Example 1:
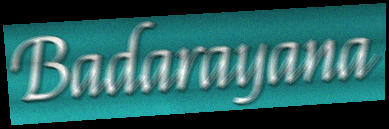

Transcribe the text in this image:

Badarayana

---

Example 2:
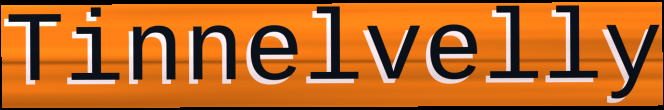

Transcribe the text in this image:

Tinnelvelly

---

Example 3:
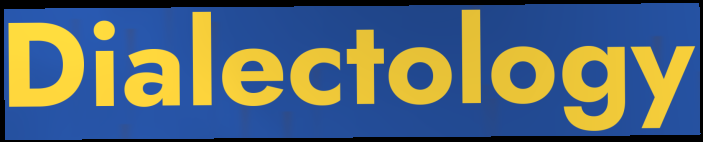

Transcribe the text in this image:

Dialectology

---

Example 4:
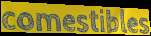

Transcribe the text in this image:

comestibles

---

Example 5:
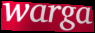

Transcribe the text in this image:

warga